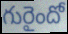
గురైందో